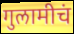
गुलामीचं